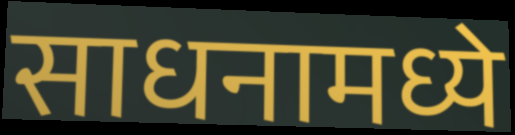
साधनामध्ये